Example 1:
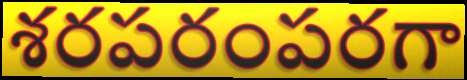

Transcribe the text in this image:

శరపరంపరగా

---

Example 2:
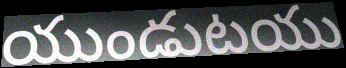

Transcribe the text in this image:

యుండుటయు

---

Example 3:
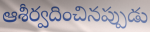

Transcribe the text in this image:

ఆశీర్వదించినప్పుడు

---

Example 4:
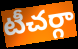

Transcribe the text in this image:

టీచర్గా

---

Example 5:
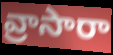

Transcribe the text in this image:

వ్రాసారా